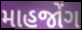
માહજોંગ